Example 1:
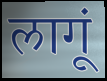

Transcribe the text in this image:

लागूं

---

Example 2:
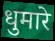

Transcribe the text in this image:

धुमारे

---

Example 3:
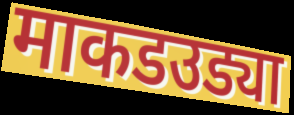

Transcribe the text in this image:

माकडउड्या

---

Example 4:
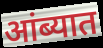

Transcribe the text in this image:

आंब्यात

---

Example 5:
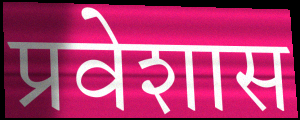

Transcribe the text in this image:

प्रवेशास